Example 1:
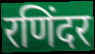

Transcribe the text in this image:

रणिंदर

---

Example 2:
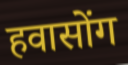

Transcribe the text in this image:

हवासोंग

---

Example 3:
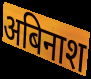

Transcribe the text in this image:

अबिनाश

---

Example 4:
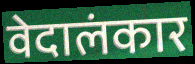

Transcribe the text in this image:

वेदालंकार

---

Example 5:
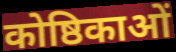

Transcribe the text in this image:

कोष्ठिकाओं